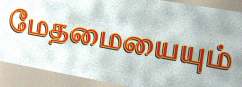
மேதமையையும்